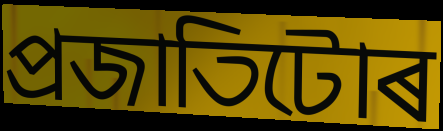
প্ৰজাতিটোৰ